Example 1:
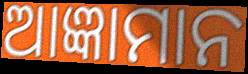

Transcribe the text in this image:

ଆଜ୍ଞାମାନ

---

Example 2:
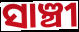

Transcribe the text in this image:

ସାଞ୍ଚୀ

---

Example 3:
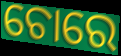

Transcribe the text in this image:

ଚୋରେ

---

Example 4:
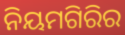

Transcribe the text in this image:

ନିୟମଗିରିର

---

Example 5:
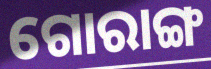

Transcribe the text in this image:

ଗୋରାଙ୍ଗ